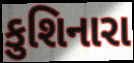
કુશિનારા